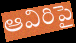
ఆవిరిపై